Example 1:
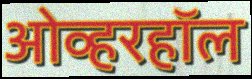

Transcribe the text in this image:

ओव्हरहॉल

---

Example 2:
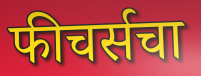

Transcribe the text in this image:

फीचर्सचा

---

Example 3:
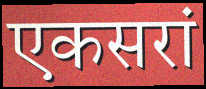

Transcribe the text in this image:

एकसरां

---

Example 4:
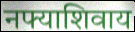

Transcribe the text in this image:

नफ्याशिवाय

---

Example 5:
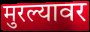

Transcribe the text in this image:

मुरल्यावर